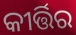
କୀର୍ତ୍ତିର